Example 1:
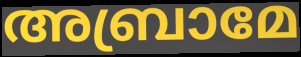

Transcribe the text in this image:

അബ്രാമേ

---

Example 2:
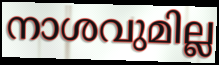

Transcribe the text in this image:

നാശവുമില്ല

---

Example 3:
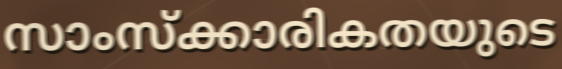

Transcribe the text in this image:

സാംസ്ക്കാരികതയുടെ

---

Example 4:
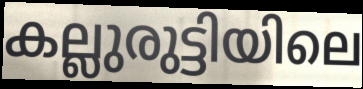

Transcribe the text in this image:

കല്ലുരുട്ടിയിലെ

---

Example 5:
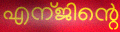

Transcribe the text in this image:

എന്ജിന്റെ